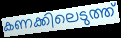
കണക്കിലെടുത്ത്